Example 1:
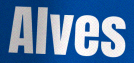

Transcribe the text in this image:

Alves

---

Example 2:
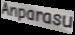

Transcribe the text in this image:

Anparasu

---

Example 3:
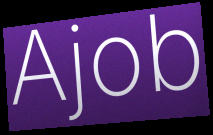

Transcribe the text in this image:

Ajob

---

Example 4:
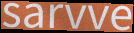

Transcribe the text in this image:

sarvve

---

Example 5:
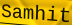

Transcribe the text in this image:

Samhit